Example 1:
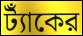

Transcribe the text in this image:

ট্যাঁকের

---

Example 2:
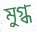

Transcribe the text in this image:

মুগ্ধ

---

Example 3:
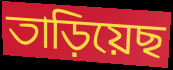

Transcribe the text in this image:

তাড়িয়েছ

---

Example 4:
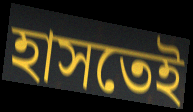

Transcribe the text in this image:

হাসতেই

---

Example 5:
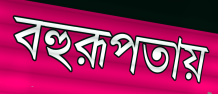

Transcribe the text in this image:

বহুরূপতায়